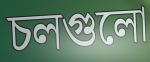
চলগুলো